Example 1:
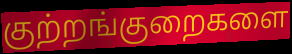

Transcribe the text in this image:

குற்றங்குறைகளை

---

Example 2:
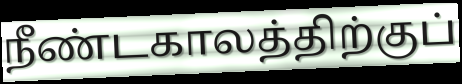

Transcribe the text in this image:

நீண்டகாலத்திற்குப்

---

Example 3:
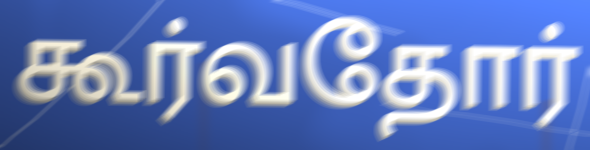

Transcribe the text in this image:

கூர்வதோர்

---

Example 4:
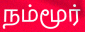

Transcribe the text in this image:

நம்மூர்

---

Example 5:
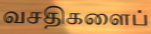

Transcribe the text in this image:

வசதிகளைப்